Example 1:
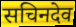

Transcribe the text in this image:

सचिनदेव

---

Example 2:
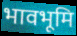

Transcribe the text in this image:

भावभूमि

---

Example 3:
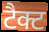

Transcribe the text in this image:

टैक्ट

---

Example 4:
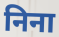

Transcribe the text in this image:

निना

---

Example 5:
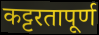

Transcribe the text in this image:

कट्टरतापूर्ण